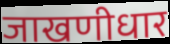
जाखणीधार